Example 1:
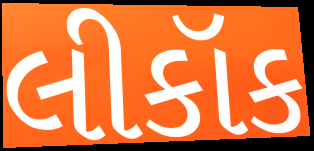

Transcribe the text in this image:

લીકૉક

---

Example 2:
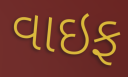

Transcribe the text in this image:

વાઇફ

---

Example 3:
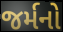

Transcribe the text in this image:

જર્મનો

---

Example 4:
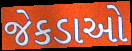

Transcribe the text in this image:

જેકડાઓ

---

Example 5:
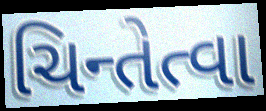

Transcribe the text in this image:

ચિન્તેત્વા